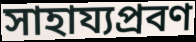
সাহায্যপ্রবণ